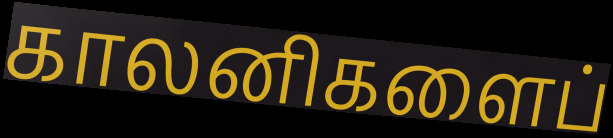
காலனிகளைப்